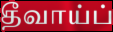
தீவாய்ப்